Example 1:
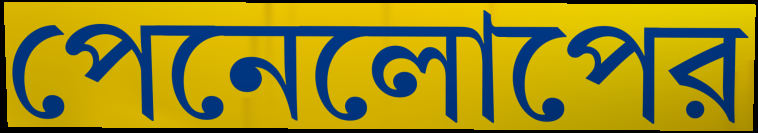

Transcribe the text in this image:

পেনেলোপের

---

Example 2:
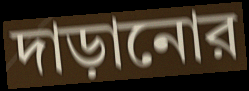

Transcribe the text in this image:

দাড়ানোর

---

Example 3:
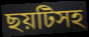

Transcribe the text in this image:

ছয়টিসহ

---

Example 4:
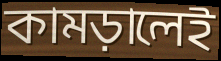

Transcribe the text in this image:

কামড়ালেই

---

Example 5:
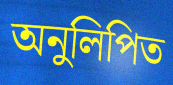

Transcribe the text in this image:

অনুলিপিত